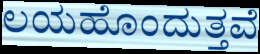
ಲಯಹೊಂದುತ್ತವೆ